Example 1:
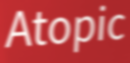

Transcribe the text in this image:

Atopic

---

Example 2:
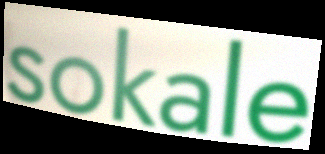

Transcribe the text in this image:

sokale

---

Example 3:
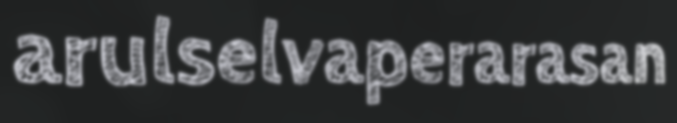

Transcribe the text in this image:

arulselvaperarasan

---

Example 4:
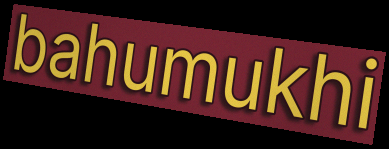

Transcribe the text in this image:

bahumukhi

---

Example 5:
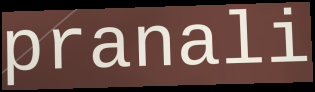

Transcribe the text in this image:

pranali